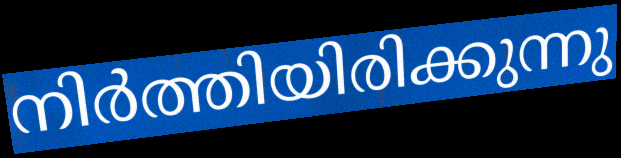
നിർത്തിയിരിക്കുന്നു